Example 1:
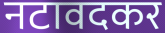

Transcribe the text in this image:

नटावदकर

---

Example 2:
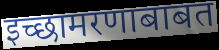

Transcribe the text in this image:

इच्छामरणाबाबत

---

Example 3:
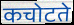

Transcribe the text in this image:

कचोटते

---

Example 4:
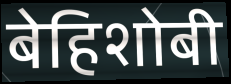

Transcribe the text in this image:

बेहिशोबी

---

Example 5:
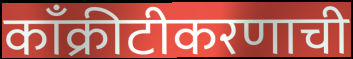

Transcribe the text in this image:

काँक्रीटीकरणाची